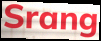
Srang